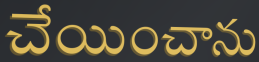
చేయించాను